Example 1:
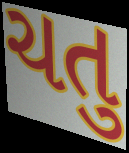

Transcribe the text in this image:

ચતુ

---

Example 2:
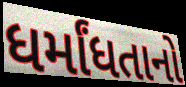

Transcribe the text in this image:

ધર્માંધતાનો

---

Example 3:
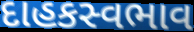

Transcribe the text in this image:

દાહકસ્વભાવ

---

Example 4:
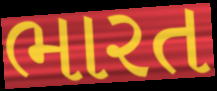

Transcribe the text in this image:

ભારત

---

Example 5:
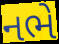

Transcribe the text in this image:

નભે